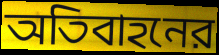
অতিবাহনের